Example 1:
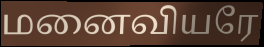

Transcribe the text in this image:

மனைவியரே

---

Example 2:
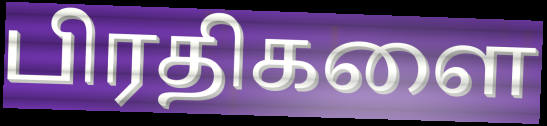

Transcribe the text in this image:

பிரதிகளை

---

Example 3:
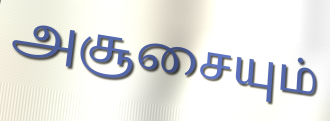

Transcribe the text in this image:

அசூசையும்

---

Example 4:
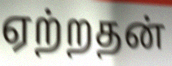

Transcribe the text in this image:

ஏற்றதன்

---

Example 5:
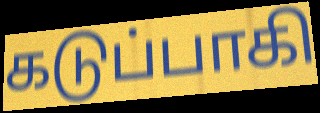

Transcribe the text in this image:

கடுப்பாகி